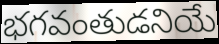
భగవంతుడనియే